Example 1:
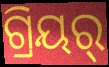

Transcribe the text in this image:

ଗ୍ରିୟର୍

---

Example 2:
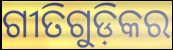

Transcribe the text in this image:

ଗୀତିଗୁଡ଼ିକର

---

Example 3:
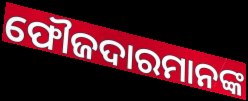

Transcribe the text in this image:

ଫୌଜଦାରମାନଙ୍କ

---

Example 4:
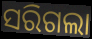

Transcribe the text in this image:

ସରିଗଲା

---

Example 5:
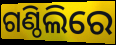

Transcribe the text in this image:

ଗଣ୍ଠିଲିରେ